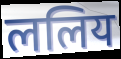
ललिय